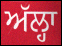
ਅੱਲ੍ਹਾ